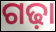
ଗଢ଼ା